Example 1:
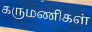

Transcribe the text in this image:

கருமணிகள்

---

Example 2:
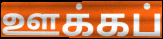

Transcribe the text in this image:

ஊக்கப்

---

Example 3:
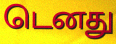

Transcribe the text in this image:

டெனது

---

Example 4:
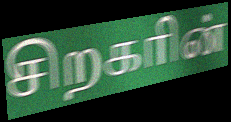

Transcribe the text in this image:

சிறகரின்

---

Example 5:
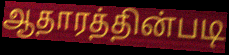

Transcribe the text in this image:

ஆதாரத்தின்படி